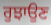
ਰੁਝਾਉਣ